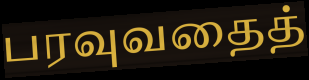
பரவுவதைத்